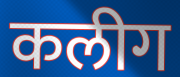
कलीग